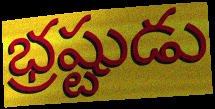
భ్రష్టుడు